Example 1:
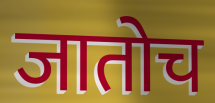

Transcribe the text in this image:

जातोच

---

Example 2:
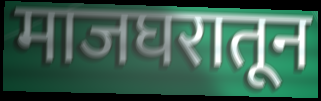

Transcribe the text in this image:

माजघरातून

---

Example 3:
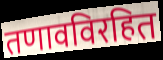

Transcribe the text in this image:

तणावविरहित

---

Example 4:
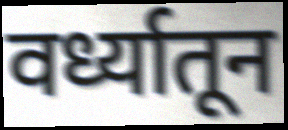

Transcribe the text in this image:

वर्ध्यातून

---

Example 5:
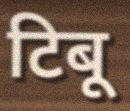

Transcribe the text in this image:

टिबू